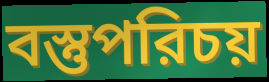
বস্তুপরিচয়